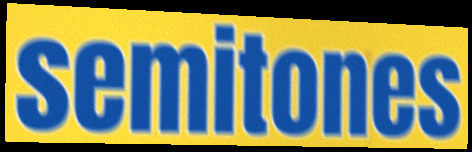
semitones